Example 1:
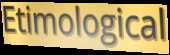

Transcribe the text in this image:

Etimological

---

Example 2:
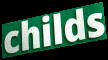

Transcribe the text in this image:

childs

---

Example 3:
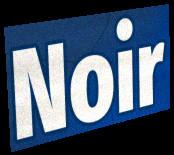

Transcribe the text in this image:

Noir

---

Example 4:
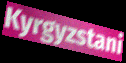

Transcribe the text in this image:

Kyrgyzstani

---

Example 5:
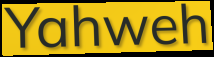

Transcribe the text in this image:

Yahweh